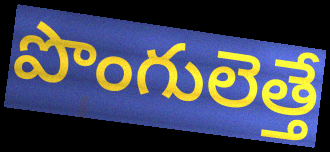
పొంగులెత్తే